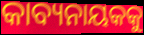
କାବ୍ୟନାୟକକୁ